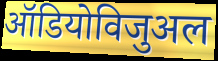
ऑडियोविजुअल